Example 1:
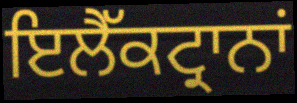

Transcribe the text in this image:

ਇਲੈੱਕਟ੍ਰਾਨਾਂ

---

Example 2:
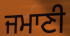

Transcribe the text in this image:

ਜਮਾਣੀ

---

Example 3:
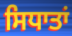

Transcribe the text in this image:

ਸਿਧਾਤਾਂ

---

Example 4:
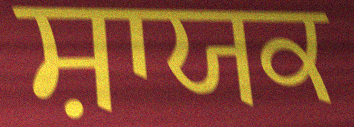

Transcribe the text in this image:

ਸ਼ਾਯਕ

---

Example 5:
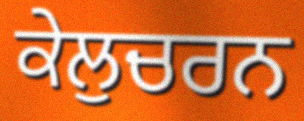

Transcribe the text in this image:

ਕੇਲੁਚਰਨ